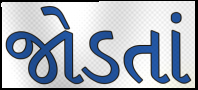
જોડતાં